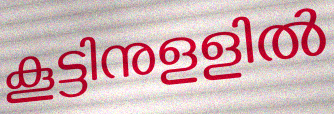
കൂട്ടിനുളളിൽ